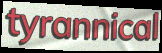
tyrannical